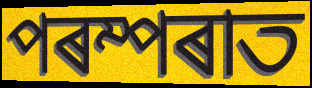
পৰম্পৰাত